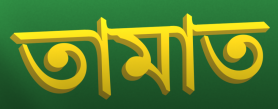
তামাত